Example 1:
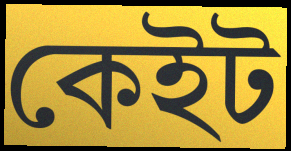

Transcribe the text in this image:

কেইট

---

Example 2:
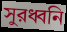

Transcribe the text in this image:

সুরধ্বনি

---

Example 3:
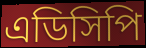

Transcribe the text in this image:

এডিসিপি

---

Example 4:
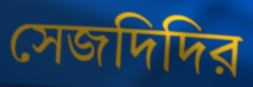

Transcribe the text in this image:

সেজদিদির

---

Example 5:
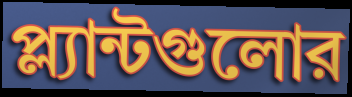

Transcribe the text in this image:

প্ল্যান্টগুলোর